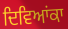
ਦਿਵਿਆਂਕਾ